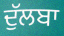
ਦੁੱਲਬਾ